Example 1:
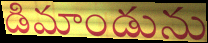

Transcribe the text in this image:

డిమాండును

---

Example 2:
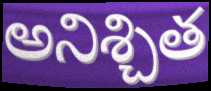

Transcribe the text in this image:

అనిశ్చిత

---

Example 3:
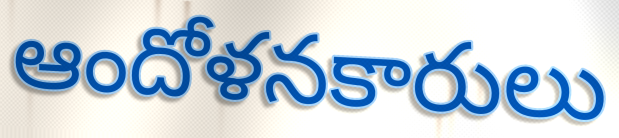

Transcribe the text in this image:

ఆందోళనకారులు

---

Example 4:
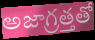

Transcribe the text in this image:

అజాగ్రత్తతో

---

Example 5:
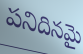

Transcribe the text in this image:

పనిదినమై